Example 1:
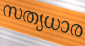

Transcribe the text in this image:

സത്യധാര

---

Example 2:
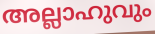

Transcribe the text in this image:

അല്ലാഹുവും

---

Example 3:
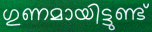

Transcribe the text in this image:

ഗുണമായിട്ടുണ്ട്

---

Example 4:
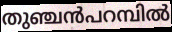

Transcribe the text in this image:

തുഞ്ചൻപറമ്പിൽ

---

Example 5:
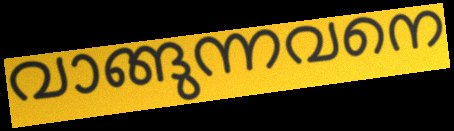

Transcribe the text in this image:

വാങ്ങുന്നവനെ